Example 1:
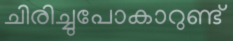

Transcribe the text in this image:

ചിരിച്ചുപോകാറുണ്ട്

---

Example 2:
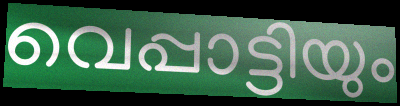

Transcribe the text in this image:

വെപ്പാട്ടിയും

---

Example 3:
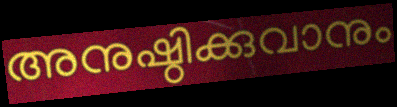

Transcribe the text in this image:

അനുഷ്ഠിക്കുവാനും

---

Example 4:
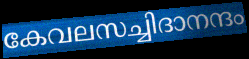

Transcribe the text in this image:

കേവലസച്ചിദാനന്ദം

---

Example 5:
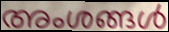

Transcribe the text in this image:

അംശങ്ങൾ